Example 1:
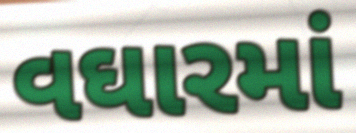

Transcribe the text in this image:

વઘારમાં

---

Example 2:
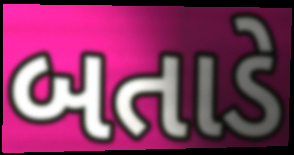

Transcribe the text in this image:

બતાડે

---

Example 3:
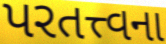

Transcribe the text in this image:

પરતત્ત્વના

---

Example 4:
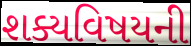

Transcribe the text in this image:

શક્યવિષયની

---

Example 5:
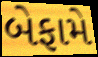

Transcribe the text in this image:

બેફામે